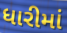
ધારીમાં